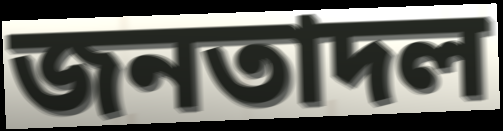
জনতাদল